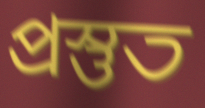
প্রস্তুত